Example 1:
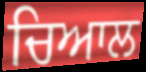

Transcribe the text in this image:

ਚਿਆਲ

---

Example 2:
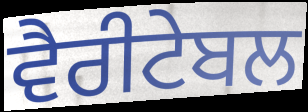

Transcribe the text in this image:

ਵੈਰੀਟੇਬਲ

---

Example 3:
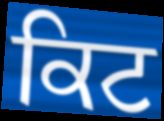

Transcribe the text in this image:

ਕਿਟ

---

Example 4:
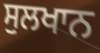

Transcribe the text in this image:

ਸੁਲਖਾਨ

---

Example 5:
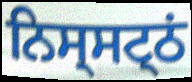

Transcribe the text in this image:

ਨਿਸ੍ਸਟ੍ਠਂ